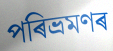
পৰিভ্ৰমণৰ